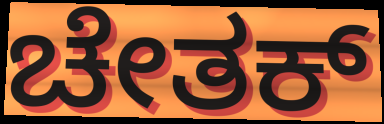
ಚೇತಕ್